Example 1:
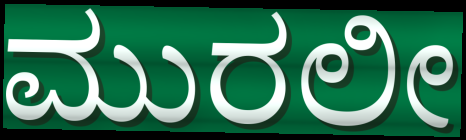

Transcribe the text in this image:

ಮುರಲೀ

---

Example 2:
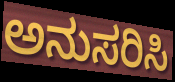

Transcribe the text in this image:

ಅನುಸರಿಸಿ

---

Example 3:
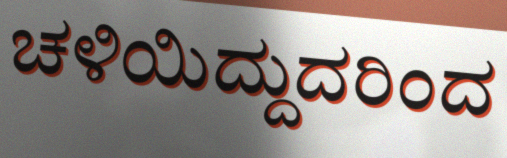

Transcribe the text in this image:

ಚಳಿಯಿದ್ದುದರಿಂದ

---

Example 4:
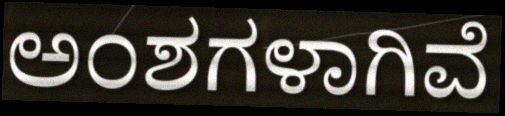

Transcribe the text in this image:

ಅಂಶಗಳಾಗಿವೆ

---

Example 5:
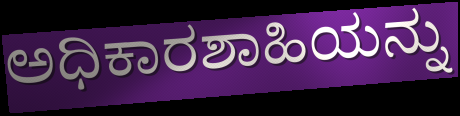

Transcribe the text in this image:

ಅಧಿಕಾರಶಾಹಿಯನ್ನು